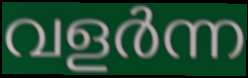
വളർന്ന